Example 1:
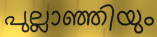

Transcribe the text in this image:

പുല്ലാഞ്ഞിയും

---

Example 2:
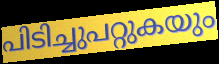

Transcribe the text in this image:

പിടിച്ചുപറ്റുകയും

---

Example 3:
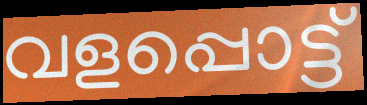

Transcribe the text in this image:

വളപ്പൊട്ട്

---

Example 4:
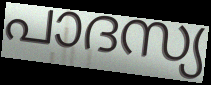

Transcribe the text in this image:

പാദസ്യ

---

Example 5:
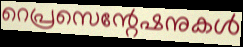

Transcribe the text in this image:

റെപ്രസെന്റേഷനുകൾ